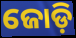
ଜୋଡ଼ି